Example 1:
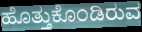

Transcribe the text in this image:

ಹೊತ್ತುಕೊಂಡಿರುವ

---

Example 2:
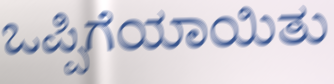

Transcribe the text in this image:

ಒಪ್ಪಿಗೆಯಾಯಿತು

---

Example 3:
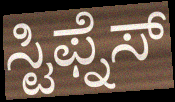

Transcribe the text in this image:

ಸ್ಟಿಫ್ನೆಸ್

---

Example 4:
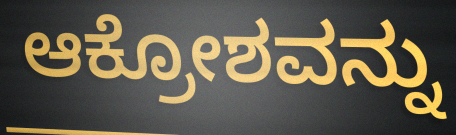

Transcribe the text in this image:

ಆಕ್ರೋಶವನ್ನು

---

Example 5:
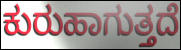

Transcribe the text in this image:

ಕುರುಹಾಗುತ್ತದೆ